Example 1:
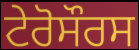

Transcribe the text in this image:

ਟੇਰੋਸੌਰਸ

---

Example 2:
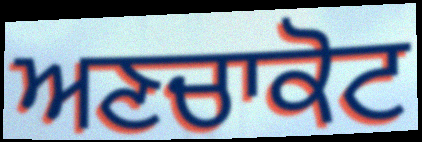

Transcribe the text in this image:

ਅਣਚਾਕੋਟ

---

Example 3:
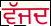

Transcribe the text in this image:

ਵੱਜਦ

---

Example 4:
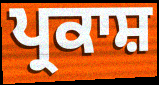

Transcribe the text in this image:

ਪ੍ਰਕਾਸ਼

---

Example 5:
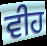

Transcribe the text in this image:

ਵੀਹ